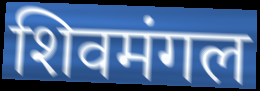
शिवमंगल